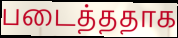
படைத்ததாக